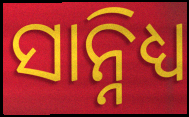
ସାନ୍ନିଧ୍ୟ